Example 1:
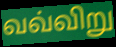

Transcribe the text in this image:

வவ்விறு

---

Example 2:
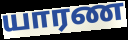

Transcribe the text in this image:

யாரண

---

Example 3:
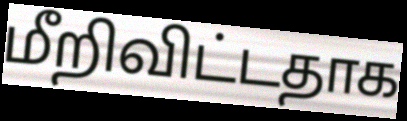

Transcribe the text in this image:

மீறிவிட்டதாக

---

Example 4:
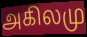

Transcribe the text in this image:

அகிலமு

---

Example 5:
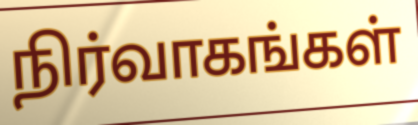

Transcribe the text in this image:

நிர்வாகங்கள்